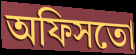
অফিসতো